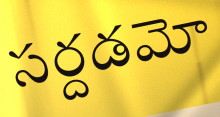
సర్దడమో